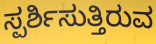
ಸ್ಪರ್ಶಿಸುತ್ತಿರುವ